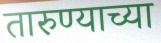
तारुण्याच्या